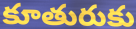
కూతురుకు